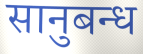
सानुबन्ध